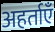
अहर्ताएँ